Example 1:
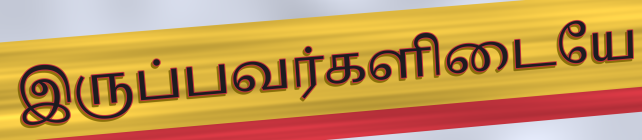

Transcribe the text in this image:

இருப்பவர்களிடையே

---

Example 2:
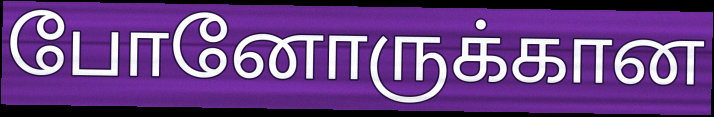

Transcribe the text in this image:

போனோருக்கான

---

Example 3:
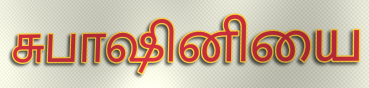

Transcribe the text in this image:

சுபாஷினியை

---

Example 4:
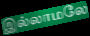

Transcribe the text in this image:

இல்லாமலே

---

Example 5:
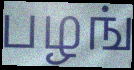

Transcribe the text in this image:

பழங்